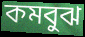
কমবুঝ